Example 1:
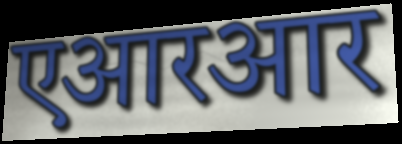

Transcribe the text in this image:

एआरआर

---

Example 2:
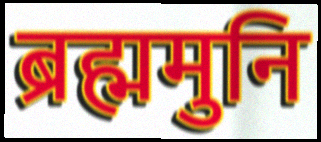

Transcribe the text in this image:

ब्रह्ममुनि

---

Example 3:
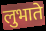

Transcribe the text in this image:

लुभाते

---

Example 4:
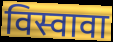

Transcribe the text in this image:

विस्वावा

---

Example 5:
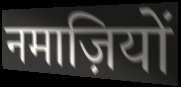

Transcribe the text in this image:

नमाज़ियों